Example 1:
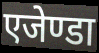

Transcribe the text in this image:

एजेण्डा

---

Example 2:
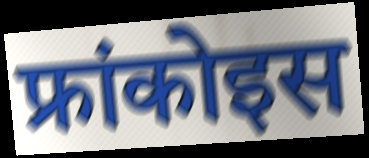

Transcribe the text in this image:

फ्रांकोइस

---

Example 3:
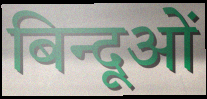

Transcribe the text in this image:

बिन्दूओं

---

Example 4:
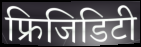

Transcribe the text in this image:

फ्रिजिडिटी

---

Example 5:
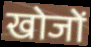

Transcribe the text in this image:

खोजों